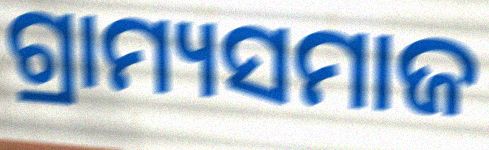
ଗ୍ରାମ୍ୟସମାଜ